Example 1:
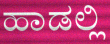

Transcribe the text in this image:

ಹಾಡಲ್ಲಿ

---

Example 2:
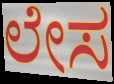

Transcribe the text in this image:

ಲೇಸ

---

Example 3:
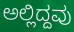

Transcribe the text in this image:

ಅಲ್ಲಿದ್ದವು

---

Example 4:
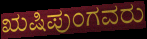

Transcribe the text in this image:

ಋಷಿಪುಂಗವರು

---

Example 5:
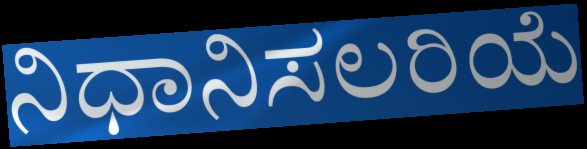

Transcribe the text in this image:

ನಿಧಾನಿಸಲರಿಯೆ